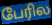
பேரில